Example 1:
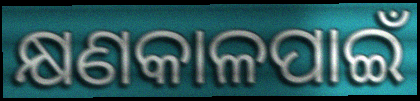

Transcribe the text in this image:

କ୍ଷଣକାଳପାଇଁ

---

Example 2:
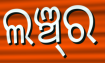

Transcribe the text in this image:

ଲଞ୍ଚ୍‍ର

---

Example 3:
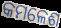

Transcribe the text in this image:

କମଳେଶ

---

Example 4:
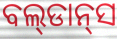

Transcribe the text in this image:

ବଲ୍‌ଡାନ୍‌ସ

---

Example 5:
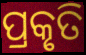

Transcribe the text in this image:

ପ୍ରକୃତି